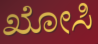
ಖೋಸಿ